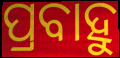
ପ୍ରବାହୁ